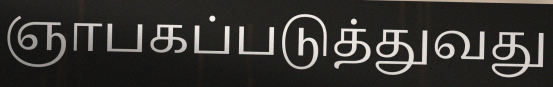
ஞாபகப்படுத்துவது